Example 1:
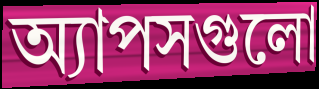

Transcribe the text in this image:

অ্যাপসগুলো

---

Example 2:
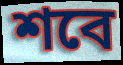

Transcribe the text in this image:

শবে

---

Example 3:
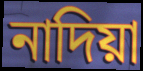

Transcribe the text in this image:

নাদিয়া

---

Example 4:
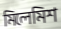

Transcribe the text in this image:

মিলেমিশ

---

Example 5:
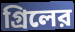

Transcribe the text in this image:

গ্রিলের